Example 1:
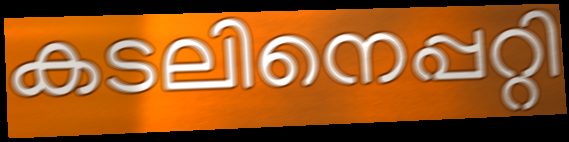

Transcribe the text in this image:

കടലിനെപ്പറ്റി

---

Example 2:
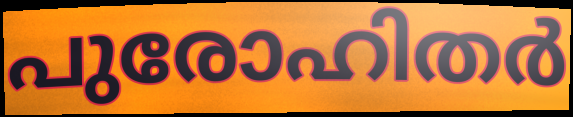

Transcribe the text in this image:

പുരോഹിതർ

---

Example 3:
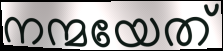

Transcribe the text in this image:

നന്മയേത്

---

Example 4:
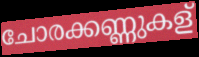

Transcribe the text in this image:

ചോരക്കണ്ണുകള്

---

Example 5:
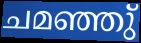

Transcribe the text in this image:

ചമഞ്ഞു്